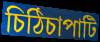
চিঠিচাপাটি